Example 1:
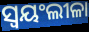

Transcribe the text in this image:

ସ୍ବୟଂଲୀଳା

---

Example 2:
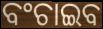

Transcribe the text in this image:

ବଂଚାଇବ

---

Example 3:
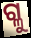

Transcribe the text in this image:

ଗ୍ଳୁ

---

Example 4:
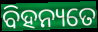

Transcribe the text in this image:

ବିହନ୍ୟତେ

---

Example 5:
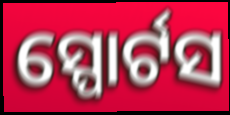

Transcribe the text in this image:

ସ୍ପୋର୍ଟସ